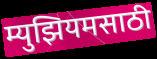
म्युझियमसाठी